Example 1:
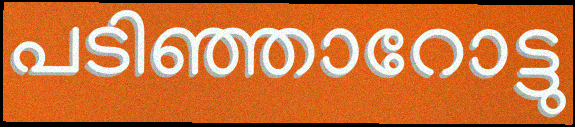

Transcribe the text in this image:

പടിഞ്ഞാറോട്ടു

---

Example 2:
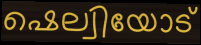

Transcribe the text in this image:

ഷെല്വിയോട്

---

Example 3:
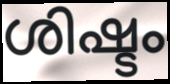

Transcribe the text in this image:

ശിഷ്ടം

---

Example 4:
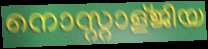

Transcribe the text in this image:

നൊസ്റ്റാള്ജിയ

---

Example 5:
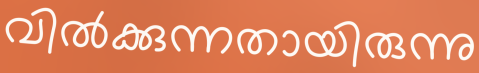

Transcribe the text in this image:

വിൽക്കുന്നതായിരുന്നു